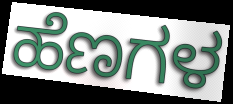
ಹೆಣಗಳ